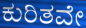
ಕುರಿತವೇ